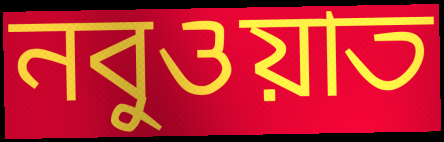
নবুওয়াত